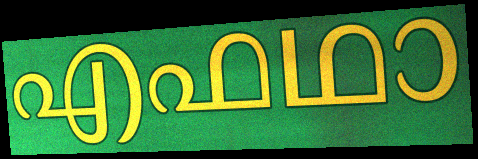
എഫഥാ